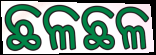
ଛଳଛଳ